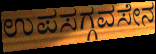
ಉಪಸಗ್ಗವಸೇನ